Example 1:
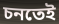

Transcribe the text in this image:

চনতেই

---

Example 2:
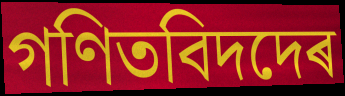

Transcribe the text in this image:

গণিতবিদদেৰ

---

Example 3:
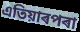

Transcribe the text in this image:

এতিয়াৰপৰা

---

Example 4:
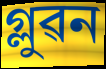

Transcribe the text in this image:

গ্লুৱন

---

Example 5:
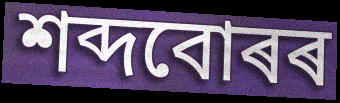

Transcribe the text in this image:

শব্দবোৰৰ